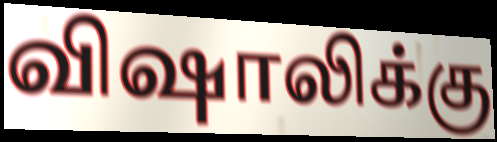
விஷாலிக்கு